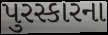
પુરસ્કારના